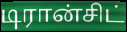
டிரான்சிட்